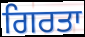
ਗਿਰਤਾ